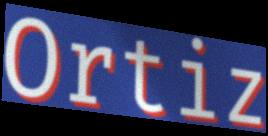
Ortiz